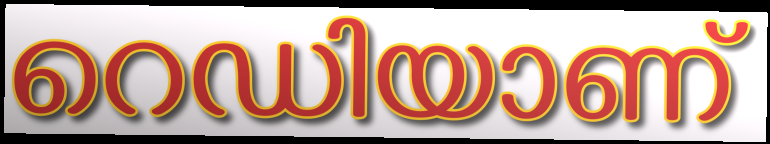
റെഡിയാണ്